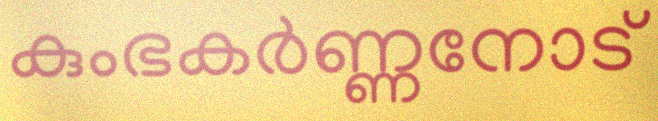
കുംഭകർണ്ണനോട്